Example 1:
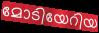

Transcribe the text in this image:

മോടിയേറിയ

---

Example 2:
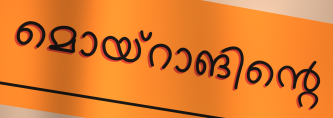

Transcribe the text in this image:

മൊയ്റാങിന്റെ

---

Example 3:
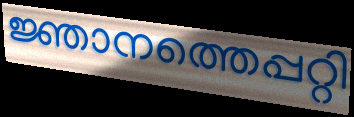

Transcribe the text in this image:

ജ്ഞാനത്തെപ്പറ്റി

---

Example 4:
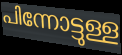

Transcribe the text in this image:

പിന്നോട്ടുള്ള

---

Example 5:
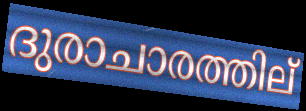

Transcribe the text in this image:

ദുരാചാരത്തില്